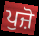
ਪੁਜ਼ੋ